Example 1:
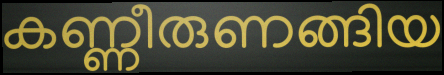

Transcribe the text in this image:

കണ്ണീരുണങ്ങിയ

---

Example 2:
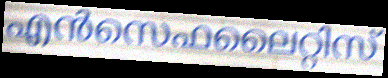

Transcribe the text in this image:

എൻസെഫലൈറ്റിസ്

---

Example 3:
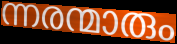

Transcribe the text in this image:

ന്നരന്മാരും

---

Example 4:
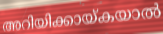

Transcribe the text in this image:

അറിയിക്കായ്കയാൽ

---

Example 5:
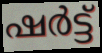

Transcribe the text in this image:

ഷർട്ട്